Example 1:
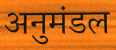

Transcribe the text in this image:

अनुमंडल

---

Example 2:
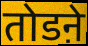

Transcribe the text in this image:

तोडऩे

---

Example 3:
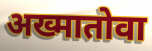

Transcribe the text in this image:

अख्मातोवा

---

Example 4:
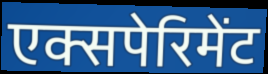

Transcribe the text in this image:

एक्सपेरिमेंट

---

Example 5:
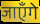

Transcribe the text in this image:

जाएँगे